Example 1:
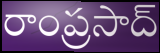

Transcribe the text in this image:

రాంప్రసాద్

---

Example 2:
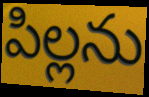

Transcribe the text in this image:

పిల్లను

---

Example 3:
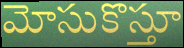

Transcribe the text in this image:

మోసుకొస్తూ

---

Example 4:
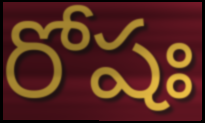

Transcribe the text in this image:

రోషః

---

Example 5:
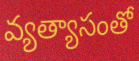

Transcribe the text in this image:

వ్యత్యాసంతో